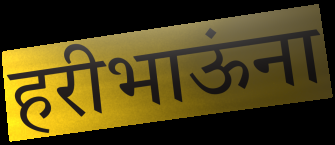
हरीभाऊंना